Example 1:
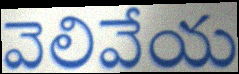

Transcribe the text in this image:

వెలివేయ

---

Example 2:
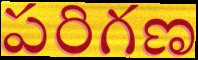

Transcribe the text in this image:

పరిగణ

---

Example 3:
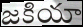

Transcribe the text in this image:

జకియా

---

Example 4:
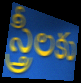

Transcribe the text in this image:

స్త్రీలకు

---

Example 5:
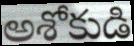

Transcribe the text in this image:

అశోకుడి